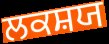
ਲਕਸ਼ਯ